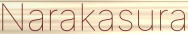
Narakasura